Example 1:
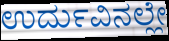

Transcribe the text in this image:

ಉರ್ದುವಿನಲ್ಲೇ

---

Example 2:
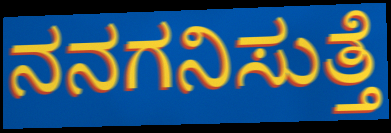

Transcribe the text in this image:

ನನಗನಿಸುತ್ತೆ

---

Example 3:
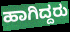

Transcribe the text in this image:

ಹಾಗಿದ್ದರು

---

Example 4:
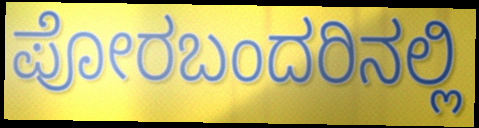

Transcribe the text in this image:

ಪೋರಬಂದರಿನಲ್ಲಿ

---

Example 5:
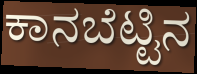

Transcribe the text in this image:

ಕಾನಬೆಟ್ಟಿನ